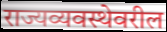
राज्यव्यवस्थेवरील